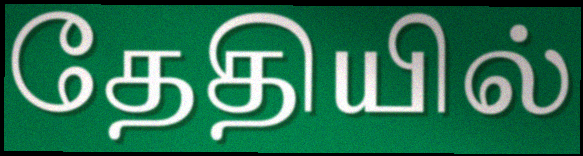
தேதியில்